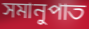
সমানুপাত